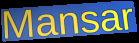
Mansar